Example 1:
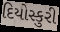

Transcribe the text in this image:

દિયોસ્કુરી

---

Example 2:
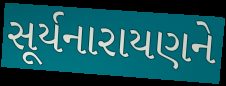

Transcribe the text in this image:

સૂર્યનારાયણને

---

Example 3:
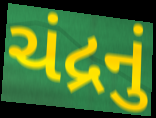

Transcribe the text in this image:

ચંદ્રનું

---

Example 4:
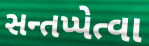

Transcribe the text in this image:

સન્તપ્પેત્વા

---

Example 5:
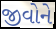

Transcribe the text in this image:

જીવોને